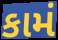
કામં